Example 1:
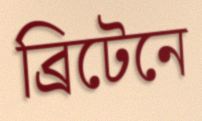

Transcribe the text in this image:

ব্রিটেনে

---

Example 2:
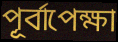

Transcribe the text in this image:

পূর্বাপেক্ষা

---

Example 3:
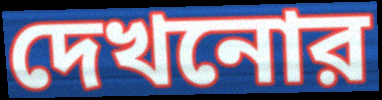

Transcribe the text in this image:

দেখনোর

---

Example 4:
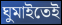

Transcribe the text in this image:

ঘুমাইতেই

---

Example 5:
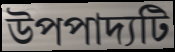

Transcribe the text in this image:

উপপাদ্যটি